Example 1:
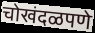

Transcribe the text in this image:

चोखंदळपणे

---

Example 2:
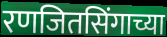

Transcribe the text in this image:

रणजितसिंगाच्या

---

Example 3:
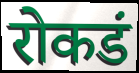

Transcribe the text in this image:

रोकडं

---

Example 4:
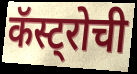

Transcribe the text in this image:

कॅस्ट्रोची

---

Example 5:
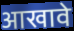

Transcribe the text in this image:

आखावे